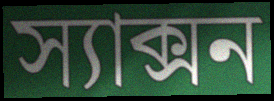
স্যাক্সন